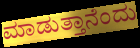
ಮಾಡುತ್ತಾನೆಂದು